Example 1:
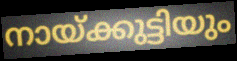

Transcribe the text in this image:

നായ്ക്കുട്ടിയും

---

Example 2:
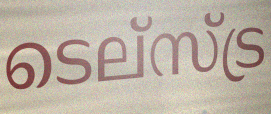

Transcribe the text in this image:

ടെല്സ്ട്ര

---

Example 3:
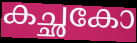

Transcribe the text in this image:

കച്ഛകോ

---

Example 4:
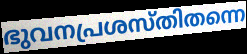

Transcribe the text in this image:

ഭുവനപ്രശസ്തിതന്നെ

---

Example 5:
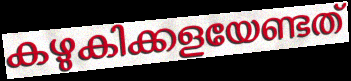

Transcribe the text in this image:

കഴുകിക്കളയേണ്ടത്